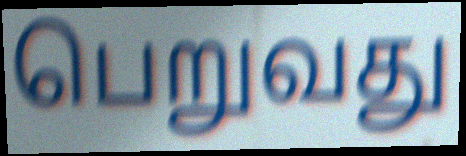
பெறுவது